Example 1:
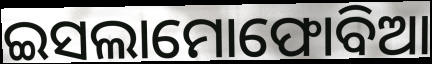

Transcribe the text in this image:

ଇସଲାମୋଫୋବିଆ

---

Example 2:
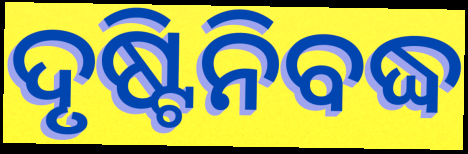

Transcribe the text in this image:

ଦୃଷ୍ଟିନିବଦ୍ଧ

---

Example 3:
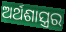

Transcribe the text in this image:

ଅର୍ଥଶାସ୍ତ୍ରର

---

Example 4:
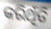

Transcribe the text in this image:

କରିଥିଁତି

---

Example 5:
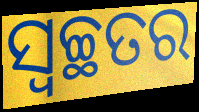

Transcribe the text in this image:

ସ୍ଵଚ୍ଛତର